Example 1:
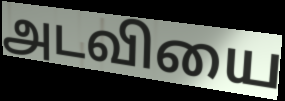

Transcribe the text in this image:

அடவியை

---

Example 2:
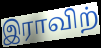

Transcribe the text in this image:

இராவிற்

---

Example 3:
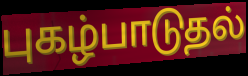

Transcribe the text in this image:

புகழ்பாடுதல்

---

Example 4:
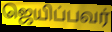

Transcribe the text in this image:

ஜெயிப்பவர்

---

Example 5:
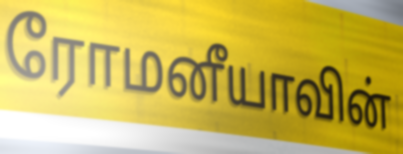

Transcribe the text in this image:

ரோமனீயாவின்